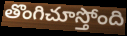
తొంగిచూస్తోంది